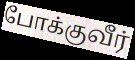
போக்குவீர்